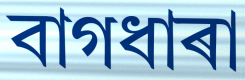
বাগধাৰা